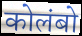
कोलंबो